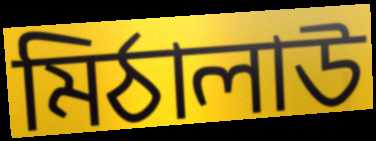
মিঠালাউ